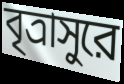
বৃত্রাসুরে